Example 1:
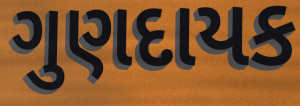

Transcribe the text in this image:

ગુણદાયક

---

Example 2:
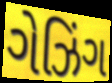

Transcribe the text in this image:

ગેઝિંગ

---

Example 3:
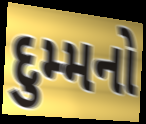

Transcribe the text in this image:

દુમ્મનો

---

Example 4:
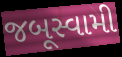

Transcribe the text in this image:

જબૂસ્વામી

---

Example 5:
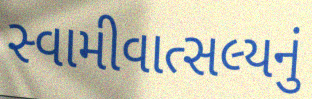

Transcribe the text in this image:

સ્વામીવાત્સલ્યનું